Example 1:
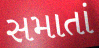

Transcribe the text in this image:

સમાતાં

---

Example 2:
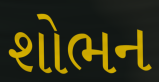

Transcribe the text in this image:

શોભન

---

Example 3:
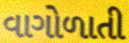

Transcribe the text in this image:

વાગોળાતી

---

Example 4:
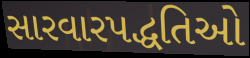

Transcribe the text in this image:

સારવારપદ્ધતિઓ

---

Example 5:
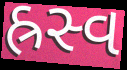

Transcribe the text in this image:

હ્રસ્વ